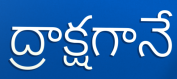
ద్రాక్షగానే